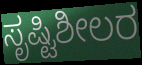
ಸೃಷ್ಟಿಶೀಲರ